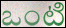
ఒంటి